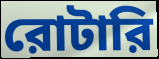
রোটারি